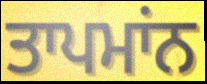
ਤਾਪਮਾਂਨ